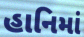
હાનિમાં